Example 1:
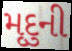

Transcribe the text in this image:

મૃદુની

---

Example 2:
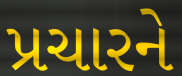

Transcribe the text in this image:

પ્રચારને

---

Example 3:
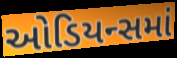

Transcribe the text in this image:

ઓડિયન્સમાં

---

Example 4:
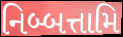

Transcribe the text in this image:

નિબ્બત્તામિ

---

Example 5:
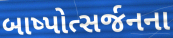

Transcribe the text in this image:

બાષ્પોત્સર્જનના